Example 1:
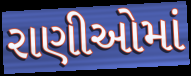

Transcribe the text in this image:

રાણીઓમાં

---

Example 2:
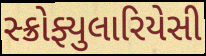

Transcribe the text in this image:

સ્ક્રોફ્યુલારિયેસી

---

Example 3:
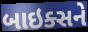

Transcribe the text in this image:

બાઇક્સને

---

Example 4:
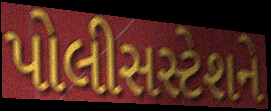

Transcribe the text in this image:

પોલીસસ્ટેશને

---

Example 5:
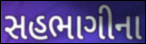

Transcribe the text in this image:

સહભાગીના